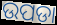
ଉପଡା